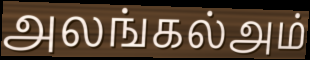
அலங்கல்அம்